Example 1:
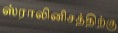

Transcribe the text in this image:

ஸ்ராலினிசத்திற்கு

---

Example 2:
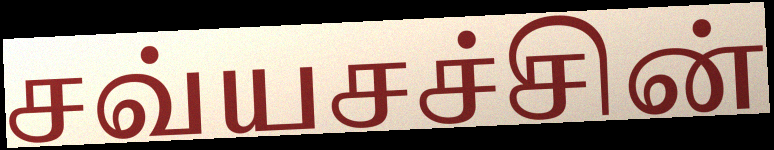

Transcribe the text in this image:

சவ்யசச்சின்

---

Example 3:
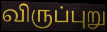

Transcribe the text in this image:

விருப்புறு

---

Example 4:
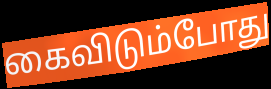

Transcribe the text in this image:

கைவிடும்போது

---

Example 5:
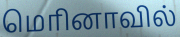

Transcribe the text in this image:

மெரினாவில்